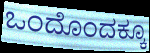
ಒಂದೊಂದಕ್ಕೂ